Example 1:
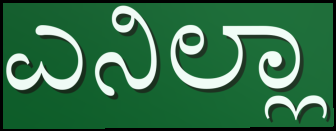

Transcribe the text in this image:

ಎನಿಲ್ಲಾ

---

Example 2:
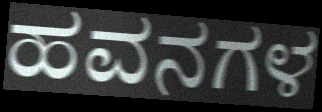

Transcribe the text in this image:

ಹವನಗಳ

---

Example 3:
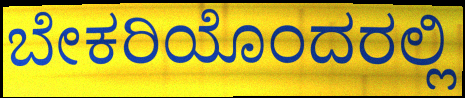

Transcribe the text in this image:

ಬೇಕರಿಯೊಂದರಲ್ಲಿ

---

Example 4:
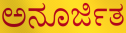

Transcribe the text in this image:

ಅನೂರ್ಜಿತ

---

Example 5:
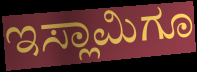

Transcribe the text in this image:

ಇಸ್ಲಾಮಿಗೂ